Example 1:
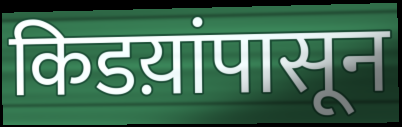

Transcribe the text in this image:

किडय़ांपासून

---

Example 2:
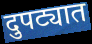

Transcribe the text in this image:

दुपट्यात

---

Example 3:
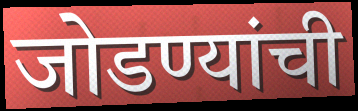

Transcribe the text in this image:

जोडण्यांची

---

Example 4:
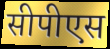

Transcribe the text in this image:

सीपीएस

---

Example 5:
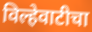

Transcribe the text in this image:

विल्हेवाटीचा